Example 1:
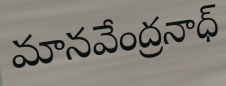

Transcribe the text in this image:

మానవేంద్రనాధ్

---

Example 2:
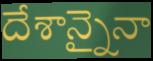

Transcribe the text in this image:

దేశాన్నైనా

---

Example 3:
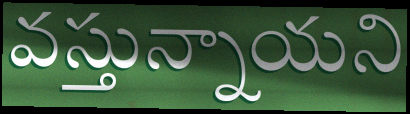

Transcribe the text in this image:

వస్తున్నాయని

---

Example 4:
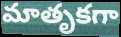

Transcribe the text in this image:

మాతృకగా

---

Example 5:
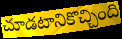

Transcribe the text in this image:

చూడటానికొచ్చింది